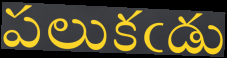
పలుకఁడు